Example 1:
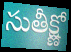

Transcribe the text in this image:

సుతీక్ష్ణో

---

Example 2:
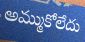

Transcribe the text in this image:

అమ్ముకోలేదు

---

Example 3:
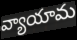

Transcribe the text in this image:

వ్యాయామ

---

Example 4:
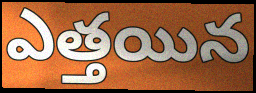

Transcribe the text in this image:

ఎత్తయిన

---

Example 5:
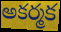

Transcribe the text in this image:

అకర్మక